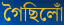
গৈছিলোঁ